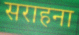
सराहना